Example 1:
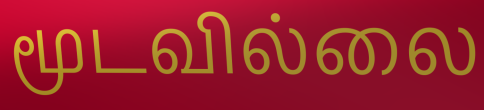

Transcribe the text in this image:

மூடவில்லை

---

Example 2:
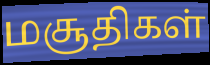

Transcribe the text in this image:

மசூதிகள்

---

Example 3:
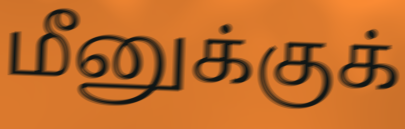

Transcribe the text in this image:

மீனுக்குக்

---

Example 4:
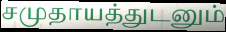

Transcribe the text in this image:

சமுதாயத்துடனும்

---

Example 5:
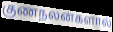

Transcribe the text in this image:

குணநலன்களால்